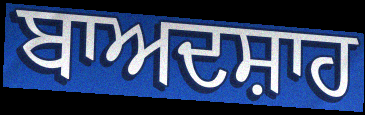
ਬਾਅਦਸ਼ਾਹ